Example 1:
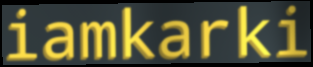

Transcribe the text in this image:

iamkarki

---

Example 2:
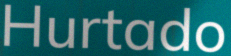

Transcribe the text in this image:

Hurtado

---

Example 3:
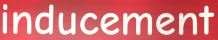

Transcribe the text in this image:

inducement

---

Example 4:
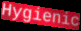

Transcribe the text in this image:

Hygienic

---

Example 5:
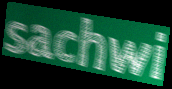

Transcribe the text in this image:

sachwi